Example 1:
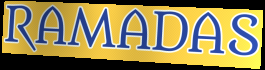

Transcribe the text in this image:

RAMADAS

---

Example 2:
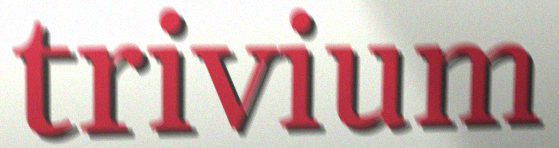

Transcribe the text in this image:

trivium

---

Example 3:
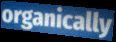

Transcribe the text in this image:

organically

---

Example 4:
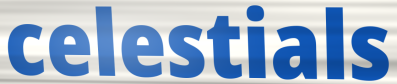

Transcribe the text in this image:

celestials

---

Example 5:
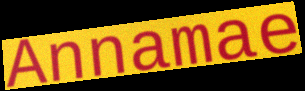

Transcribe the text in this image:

Annamae